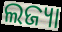
ଲଜ୍ୟା